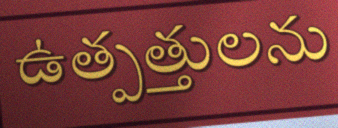
ఉత్పత్తులను